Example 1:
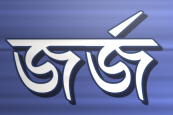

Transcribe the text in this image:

জর্জ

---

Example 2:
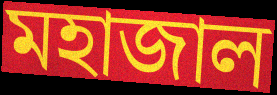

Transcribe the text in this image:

মহাজাল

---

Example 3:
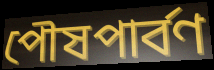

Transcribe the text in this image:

পৌষপার্বণ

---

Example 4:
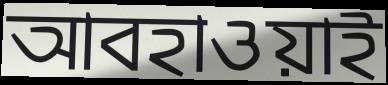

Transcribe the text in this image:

আবহাওয়াই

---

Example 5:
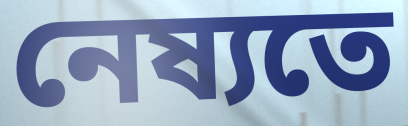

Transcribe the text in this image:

নেষ্যতে